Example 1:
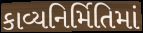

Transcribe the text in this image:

કાવ્યનિર્મિતિમાં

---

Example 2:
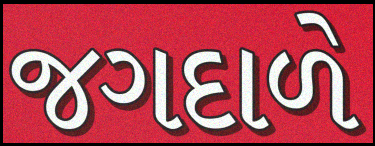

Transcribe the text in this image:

જગદાળે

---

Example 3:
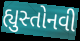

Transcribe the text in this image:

હ્યુસ્તોનવી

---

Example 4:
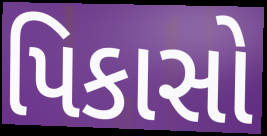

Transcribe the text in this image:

પિકાસો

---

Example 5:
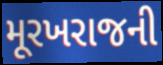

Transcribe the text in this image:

મૂરખરાજની